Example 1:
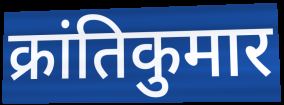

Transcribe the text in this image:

क्रांतिकुमार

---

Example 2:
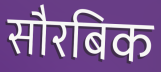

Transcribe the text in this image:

सौरबिक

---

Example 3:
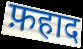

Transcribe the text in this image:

फ़हाद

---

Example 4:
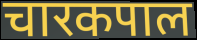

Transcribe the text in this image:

चारकपाल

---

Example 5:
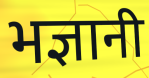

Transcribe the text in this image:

भज्ञानी